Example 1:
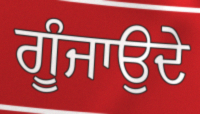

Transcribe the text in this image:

ਗੂੰਜਾਉਦੇ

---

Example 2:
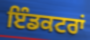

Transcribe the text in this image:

ਇੰਡਕਟਰਾਂ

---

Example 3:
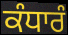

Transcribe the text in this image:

ਕੰਧਾਰੰ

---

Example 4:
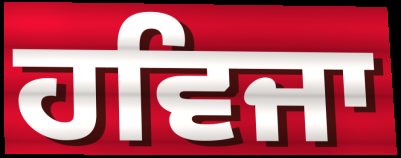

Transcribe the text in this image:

ਹਵਿਜਾ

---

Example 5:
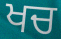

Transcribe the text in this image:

ਖਚ